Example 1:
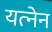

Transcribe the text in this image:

यत्‍नेन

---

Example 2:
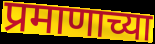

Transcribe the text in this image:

प्रमाणाच्या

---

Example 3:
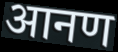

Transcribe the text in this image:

आनण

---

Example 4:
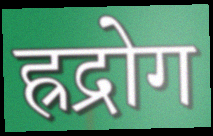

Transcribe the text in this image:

ह्रद्रोग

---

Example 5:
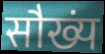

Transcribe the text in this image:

सौख्यं